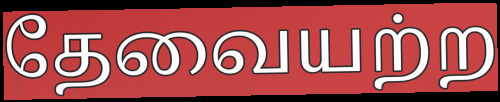
தேவையற்ற